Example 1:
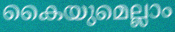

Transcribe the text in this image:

കൈയുമെല്ലാം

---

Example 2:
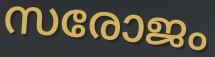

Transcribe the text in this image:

സരോജം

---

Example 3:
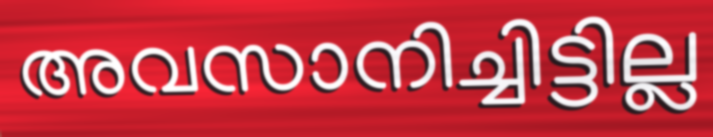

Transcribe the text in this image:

അവസാനിച്ചിട്ടില്ല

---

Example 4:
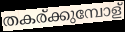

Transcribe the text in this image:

തകര്ക്കുമ്പോള്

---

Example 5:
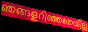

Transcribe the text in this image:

ഞങ്ങളറിഞ്ഞതേയില്ല